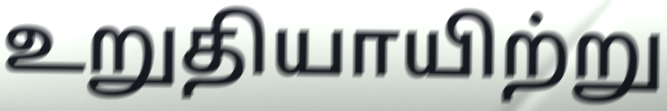
உறுதியாயிற்று